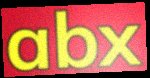
abx